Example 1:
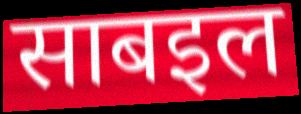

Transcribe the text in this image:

साबइल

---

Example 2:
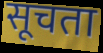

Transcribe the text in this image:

सूचता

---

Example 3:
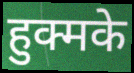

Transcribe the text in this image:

हुक्मके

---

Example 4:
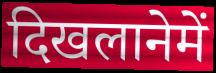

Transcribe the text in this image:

दिखलानेमें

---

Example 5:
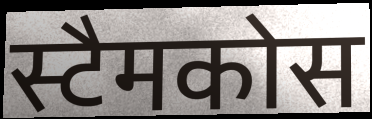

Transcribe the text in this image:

स्टैमकोस